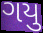
ગયુ